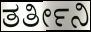
ತರ್ತೀನಿ